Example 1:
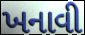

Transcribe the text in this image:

ખનાવી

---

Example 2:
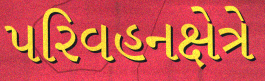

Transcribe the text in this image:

પરિવહનક્ષેત્રે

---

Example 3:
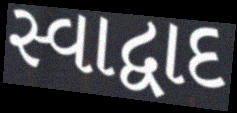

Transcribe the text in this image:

સ્વાદ્વાદ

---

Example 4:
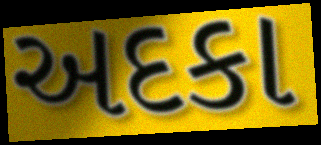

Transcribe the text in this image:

અદકા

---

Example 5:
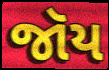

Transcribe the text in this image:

જૉય